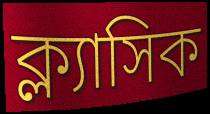
ক্ল্যাসিক